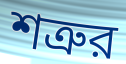
শত্রুর